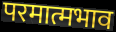
परमात्मभाव